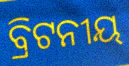
ବ୍ରିଟନୀୟ